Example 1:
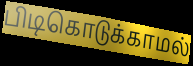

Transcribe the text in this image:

பிடிகொடுக்காமல்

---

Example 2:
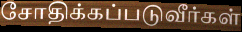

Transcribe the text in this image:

சோதிக்கப்படுவீர்கள்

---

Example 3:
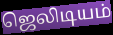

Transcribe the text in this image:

ஜெலிடியம்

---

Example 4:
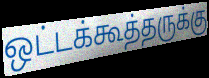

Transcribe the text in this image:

ஒட்டக்கூத்தருக்கு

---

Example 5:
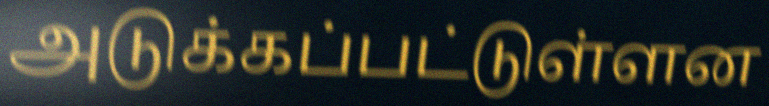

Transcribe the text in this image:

அடுக்கப்பட்டுள்ளன